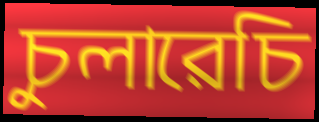
চুলাৱেচি